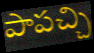
పాపచ్చి